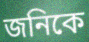
জনিকে